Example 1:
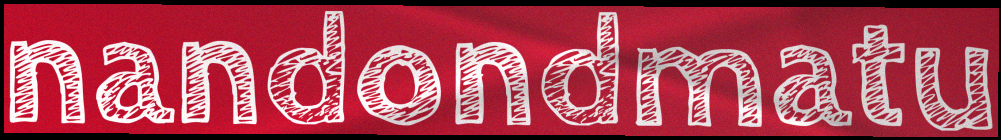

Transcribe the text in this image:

nandondmatu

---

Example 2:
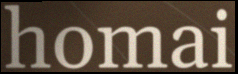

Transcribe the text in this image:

homai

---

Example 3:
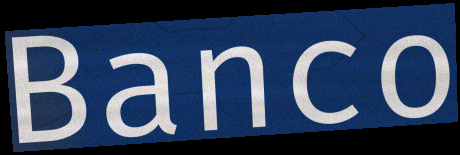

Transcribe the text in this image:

Banco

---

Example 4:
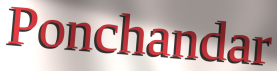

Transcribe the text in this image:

Ponchandar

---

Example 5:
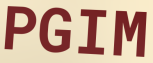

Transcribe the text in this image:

PGIM